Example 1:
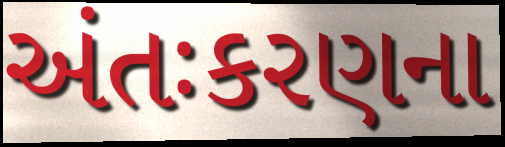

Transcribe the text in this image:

અંતઃકરણના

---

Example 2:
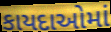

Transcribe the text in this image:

કાયદાઓમાં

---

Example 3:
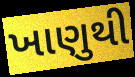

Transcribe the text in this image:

ખાણુથી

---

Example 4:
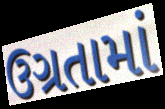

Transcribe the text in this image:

ઉગ્રતામાં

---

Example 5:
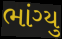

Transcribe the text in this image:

ભાંગ્યુ